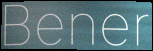
Bener